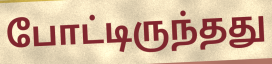
போட்டிருந்தது